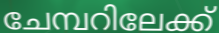
ചേമ്പറിലേക്ക്